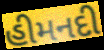
હીમનદી